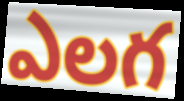
ఎలగ